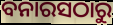
ବନାରସଠାରୁ